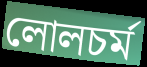
লোলচর্ম